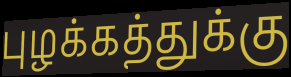
புழக்கத்துக்கு